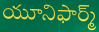
యూనిఫార్మ్